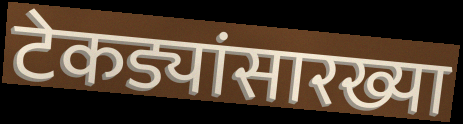
टेकड्यांसारख्या